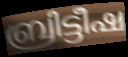
ബ്രിട്ടീഷ